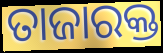
ତାଜାରକ୍ତ